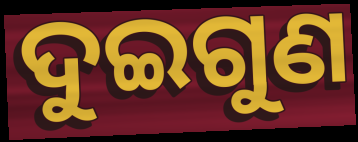
ଦୁଇଗୁଣ